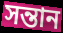
সন্তান